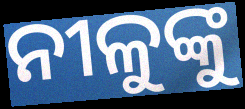
ନୀଳୁଙ୍କୁ